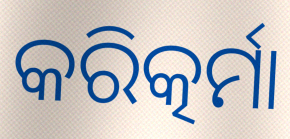
କରିତ୍କର୍ମା